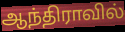
ஆந்திராவில்